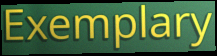
Exemplary